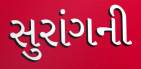
સુરાંગની